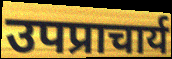
उपप्राचार्य